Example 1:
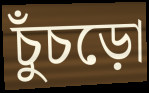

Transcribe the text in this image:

চুঁচড়ো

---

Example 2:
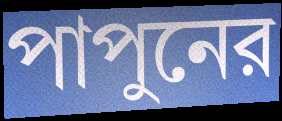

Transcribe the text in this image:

পাপুনের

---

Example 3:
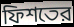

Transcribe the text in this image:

ফিশতের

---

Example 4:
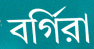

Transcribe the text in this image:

বর্গিরা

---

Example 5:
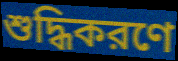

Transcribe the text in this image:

শুদ্ধিকরণে